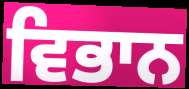
ਵਿਭਾਨ